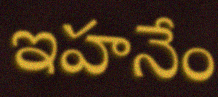
ఇహనేం